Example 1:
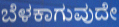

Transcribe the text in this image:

ಬೆಳಕಾಗುವುದೇ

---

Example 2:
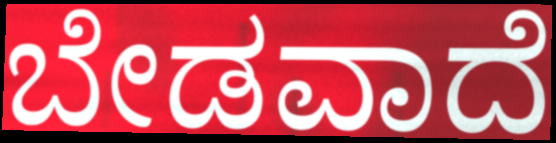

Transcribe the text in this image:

ಬೇಡವಾದೆ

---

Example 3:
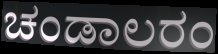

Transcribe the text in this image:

ಚಂಡಾಲರಂ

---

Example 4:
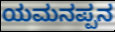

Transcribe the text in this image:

ಯಮನಪ್ಪನ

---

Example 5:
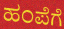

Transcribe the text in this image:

ಹಂಪೆಗೆ